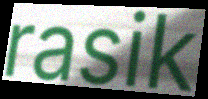
rasik